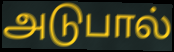
அடுபால்